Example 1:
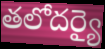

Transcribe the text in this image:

తలోదర్యై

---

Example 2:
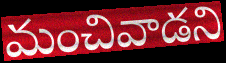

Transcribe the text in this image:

మంచివాడని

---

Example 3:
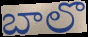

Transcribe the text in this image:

బాలొ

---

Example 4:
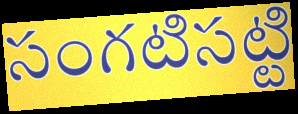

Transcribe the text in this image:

సంగటిసట్టి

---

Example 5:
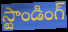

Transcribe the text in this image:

స్టాండింగ్